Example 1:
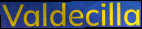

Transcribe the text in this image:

Valdecilla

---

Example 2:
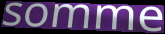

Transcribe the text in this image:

somme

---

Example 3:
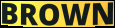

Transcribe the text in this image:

BROWN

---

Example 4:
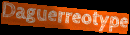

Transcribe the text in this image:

Daguerreotype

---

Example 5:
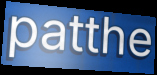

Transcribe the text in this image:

patthe